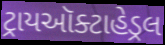
ટ્રાયઑક્ટાહેડ્રલ